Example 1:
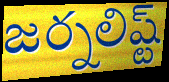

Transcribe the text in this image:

జర్నలిష్ట్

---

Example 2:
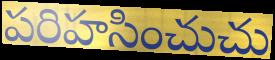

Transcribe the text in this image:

పరిహసించుచు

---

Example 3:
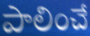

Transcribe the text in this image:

పాలించే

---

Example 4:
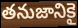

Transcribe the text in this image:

తనుజానికై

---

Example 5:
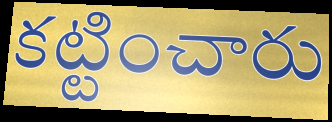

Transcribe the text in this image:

కట్టించారు